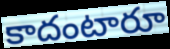
కాదంటారూ